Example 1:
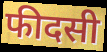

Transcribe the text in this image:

फीदसी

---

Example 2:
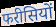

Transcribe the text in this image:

फरीसियों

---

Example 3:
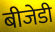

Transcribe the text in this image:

बीजेडी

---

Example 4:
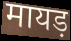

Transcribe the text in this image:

मायड़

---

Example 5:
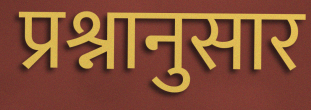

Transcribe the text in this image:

प्रश्नानुसार